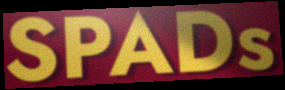
SPADs